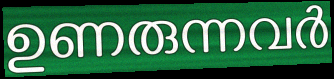
ഉണരുന്നവർ